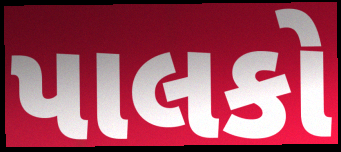
પાલકો